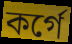
কর্গে